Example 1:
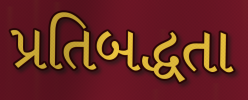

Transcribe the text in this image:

પ્રતિબદ્ધતા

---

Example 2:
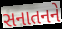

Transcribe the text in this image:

સનાતનને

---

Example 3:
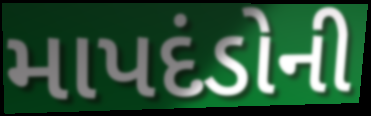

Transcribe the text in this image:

માપદંડોની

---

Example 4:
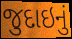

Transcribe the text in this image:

જુદાઇનું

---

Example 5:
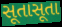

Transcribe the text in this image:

સૂતાસૂતા